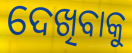
ଦେଖିବାକୁ